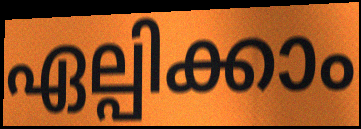
ഏല്പിക്കാം